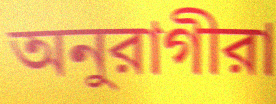
অনুরাগীরা